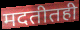
मदतीतही